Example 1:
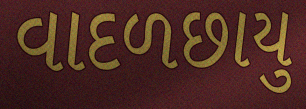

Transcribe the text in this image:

વાદળછાયુ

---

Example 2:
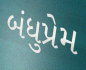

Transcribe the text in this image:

બંધુપ્રેમ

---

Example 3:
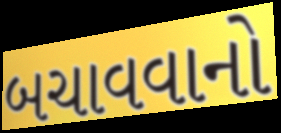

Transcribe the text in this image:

બચાવવાનો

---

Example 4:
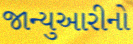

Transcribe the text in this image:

જાન્યુઆરીનો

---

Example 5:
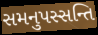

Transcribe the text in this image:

સમનુપસ્સન્તિ